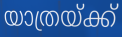
യാത്രയ്ക്ക്